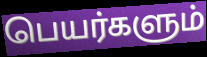
பெயர்களும்